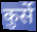
कुर्से